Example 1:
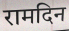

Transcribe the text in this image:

रामदिन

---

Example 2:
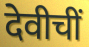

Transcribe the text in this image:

देवीचीं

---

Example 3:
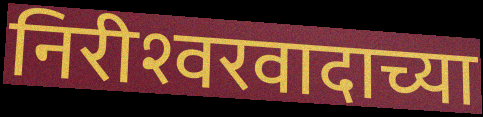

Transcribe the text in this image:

निरीश्वरवादाच्या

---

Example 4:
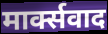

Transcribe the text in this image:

मार्क्सवाद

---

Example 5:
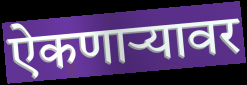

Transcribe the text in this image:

ऐकणार्‍यावर